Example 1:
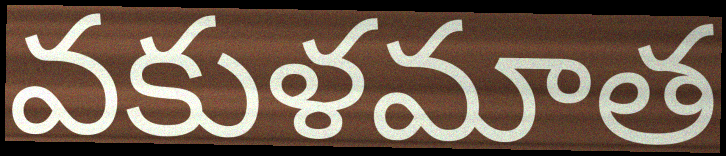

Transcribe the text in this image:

వకుళమాత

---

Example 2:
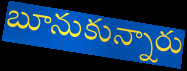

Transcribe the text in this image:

బూనుకున్నారు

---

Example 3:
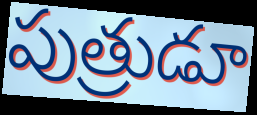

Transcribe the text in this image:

పుత్రుడూ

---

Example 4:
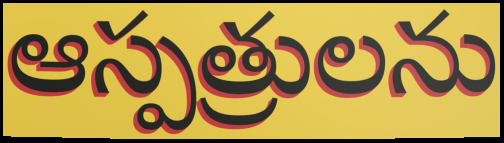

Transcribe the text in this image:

ఆస్పత్రులను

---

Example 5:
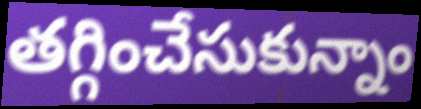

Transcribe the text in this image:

తగ్గించేసుకున్నాం